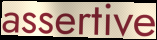
assertive